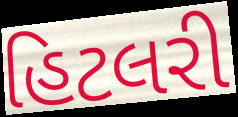
હિટલરી